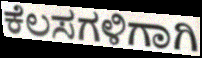
ಕೆಲಸಗಳಿಗಾಗಿ